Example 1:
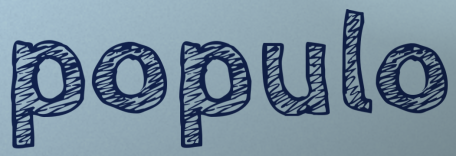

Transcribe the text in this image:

populo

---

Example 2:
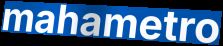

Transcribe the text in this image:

mahametro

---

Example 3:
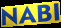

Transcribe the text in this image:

NABI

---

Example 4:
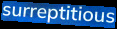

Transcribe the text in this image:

surreptitious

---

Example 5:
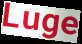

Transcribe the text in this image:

Luge